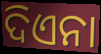
ଦିଏନା